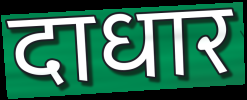
दाधार